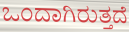
ಒಂದಾಗಿರುತ್ತದೆ